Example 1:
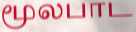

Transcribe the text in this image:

மூலபாட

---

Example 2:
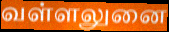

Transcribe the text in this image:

வள்ளலுனை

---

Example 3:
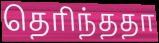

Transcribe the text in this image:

தெரிந்ததா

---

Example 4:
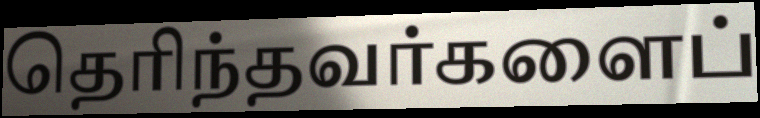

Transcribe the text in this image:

தெரிந்தவர்களைப்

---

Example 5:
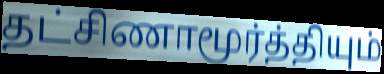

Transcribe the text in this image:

தட்சிணாமூர்த்தியும்